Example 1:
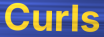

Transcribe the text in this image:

Curls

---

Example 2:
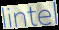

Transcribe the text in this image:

lintel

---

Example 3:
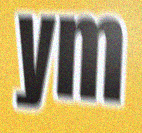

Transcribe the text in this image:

ym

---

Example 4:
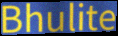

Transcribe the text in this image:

Bhulite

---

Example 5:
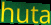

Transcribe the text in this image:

huta